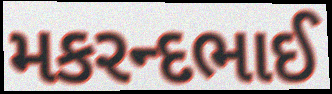
મકરન્દભાઈ